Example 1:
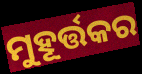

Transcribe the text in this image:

ମୁହୂର୍ତ୍ତକର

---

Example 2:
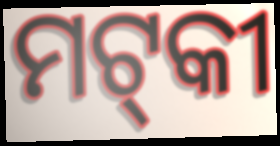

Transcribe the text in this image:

ମଟ୍‌କୀ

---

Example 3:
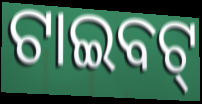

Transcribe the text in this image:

ଟାଇବଟ୍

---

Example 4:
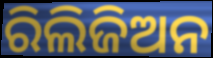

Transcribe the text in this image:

ରିଲିଜିଅନ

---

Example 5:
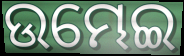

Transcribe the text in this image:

ଉମ୍ଭେଇ